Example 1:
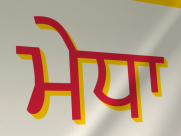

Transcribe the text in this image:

ਮੇਧਾ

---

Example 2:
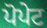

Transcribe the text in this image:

ਪੋਪੇਟ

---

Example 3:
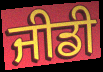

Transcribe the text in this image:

ਜੀਡੀ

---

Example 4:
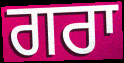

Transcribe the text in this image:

ਗਰਾ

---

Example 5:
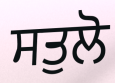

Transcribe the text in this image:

ਸਤੁਲੋ